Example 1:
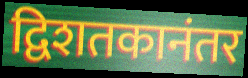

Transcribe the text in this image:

द्विशतकानंतर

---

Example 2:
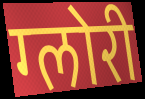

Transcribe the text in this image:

ग्लोरी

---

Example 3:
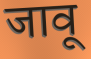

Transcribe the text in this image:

जावू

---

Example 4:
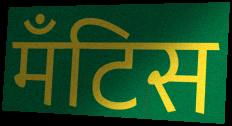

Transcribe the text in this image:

मँटिस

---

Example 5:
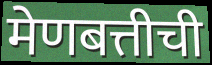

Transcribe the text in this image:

मेणबत्तीची